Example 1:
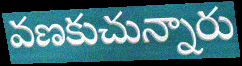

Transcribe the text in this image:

వణకుచున్నారు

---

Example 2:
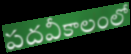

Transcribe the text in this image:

పదవీకాలంలో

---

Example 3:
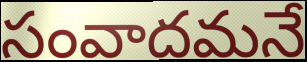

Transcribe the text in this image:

సంవాదమనే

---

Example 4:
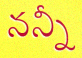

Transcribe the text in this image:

నన్నీ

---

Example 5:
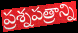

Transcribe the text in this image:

ప్రశ్నపత్రాన్ని